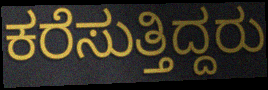
ಕರೆಸುತ್ತಿದ್ದರು